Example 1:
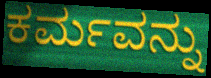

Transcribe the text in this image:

ಕರ್ಮವನ್ನು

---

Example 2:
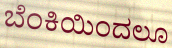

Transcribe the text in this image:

ಬೆಂಕಿಯಿಂದಲೂ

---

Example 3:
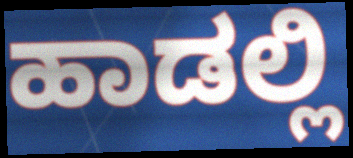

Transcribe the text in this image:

ಹಾಡಲ್ಲಿ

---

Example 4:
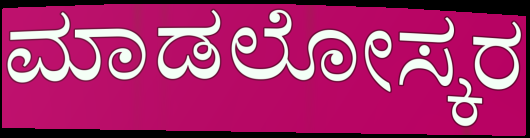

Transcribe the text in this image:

ಮಾಡಲೋಸ್ಕರ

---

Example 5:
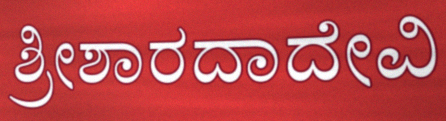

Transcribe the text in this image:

ಶ್ರೀಶಾರದಾದೇವಿ